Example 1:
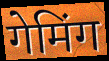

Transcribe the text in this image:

गेमिंग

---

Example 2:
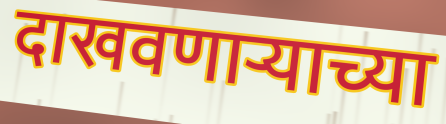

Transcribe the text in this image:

दाखवणाऱ्याच्या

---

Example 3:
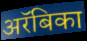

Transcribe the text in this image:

अरॅबिका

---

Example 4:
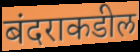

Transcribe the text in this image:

बंदराकडील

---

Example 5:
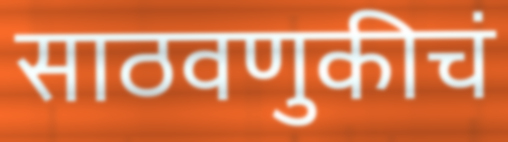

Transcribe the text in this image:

साठवणुकीचं